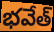
భవేత్